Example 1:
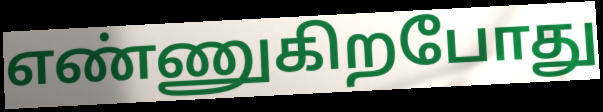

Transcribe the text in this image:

எண்ணுகிறபோது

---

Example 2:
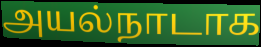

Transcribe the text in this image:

அயல்நாடாக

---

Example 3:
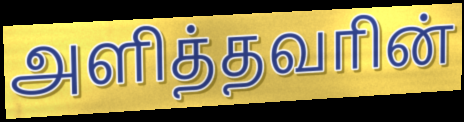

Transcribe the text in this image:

அளித்தவரின்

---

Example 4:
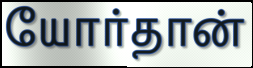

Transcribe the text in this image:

யோர்தான்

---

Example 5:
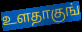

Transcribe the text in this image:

உளதாகுங்